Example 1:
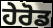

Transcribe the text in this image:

ਹੇਰੋਡ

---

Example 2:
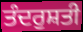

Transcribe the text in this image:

ਤੰਦਰੁਸ਼ਤੀ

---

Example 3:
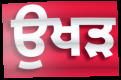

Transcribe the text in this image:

ਉਖੜ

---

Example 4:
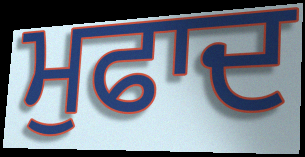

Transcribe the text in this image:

ਮੁਫਾਦ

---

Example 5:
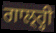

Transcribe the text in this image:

ਗਾਲ੍ਹ੍ਹੀ